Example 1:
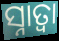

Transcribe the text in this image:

ସ୍ନାତ୍ବା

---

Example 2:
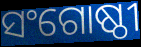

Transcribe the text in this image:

ସଂଗୋଷ୍ଠୀ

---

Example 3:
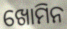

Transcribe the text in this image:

ଖୋମିନ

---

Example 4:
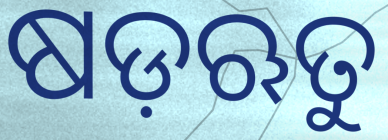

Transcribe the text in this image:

ଷଡ଼ଋତୁ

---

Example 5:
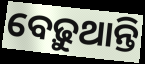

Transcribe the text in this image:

ବେଢ଼ୁଥାନ୍ତି